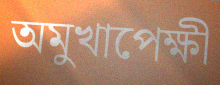
অমুখাপেক্ষী